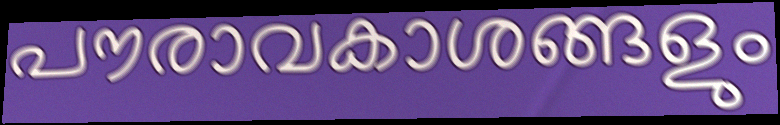
പൗരാവകാശങ്ങളും